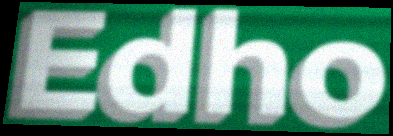
Edho